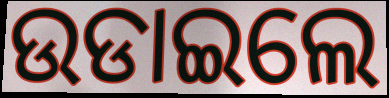
ଉଡାଇଲେ